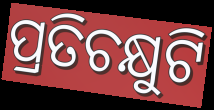
ପ୍ରତିଚକ୍ଷୁଟି